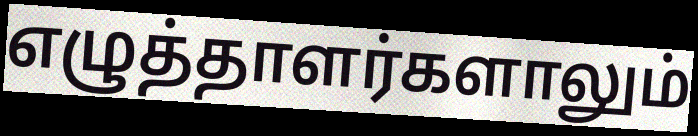
எழுத்தாளர்களாலும்